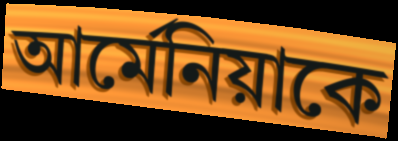
আর্মেনিয়াকে